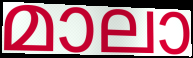
മാലാ